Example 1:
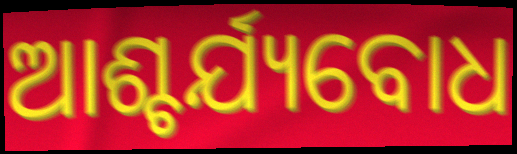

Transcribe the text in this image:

ଆଶ୍ଚର୍ଯ୍ୟବୋଧ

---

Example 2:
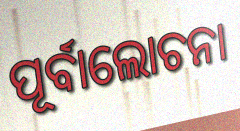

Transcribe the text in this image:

ପୂର୍ବାଲୋଚନା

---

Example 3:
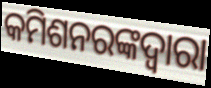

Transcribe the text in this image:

କମିଶନରଙ୍କଦ୍ୱାରା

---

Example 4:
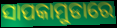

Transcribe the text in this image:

ସାପକାମୁଡାରେ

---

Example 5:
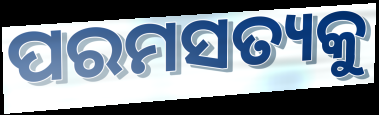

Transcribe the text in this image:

ପରମସତ୍ୟକୁ